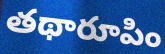
తథారూపిం